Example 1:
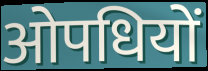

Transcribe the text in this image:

ओपधियों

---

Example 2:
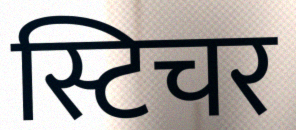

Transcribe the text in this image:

स्टिचर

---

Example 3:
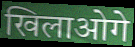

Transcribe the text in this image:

खिलाओगे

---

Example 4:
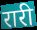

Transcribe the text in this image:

रारी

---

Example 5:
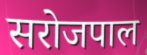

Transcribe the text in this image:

सरोजपाल